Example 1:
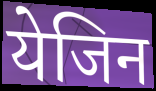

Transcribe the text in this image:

येजिन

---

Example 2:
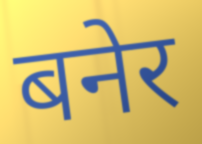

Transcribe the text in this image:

बनेर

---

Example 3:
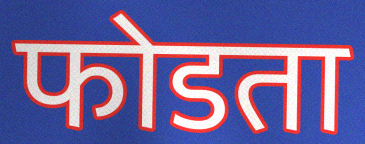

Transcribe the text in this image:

फोडता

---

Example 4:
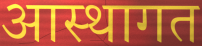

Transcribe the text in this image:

आस्थागत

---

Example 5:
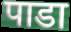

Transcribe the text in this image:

पाडा